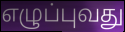
எழுப்புவது